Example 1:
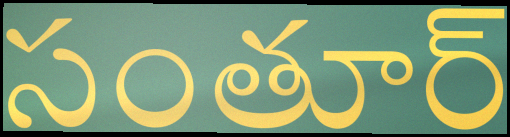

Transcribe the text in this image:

సంతూర్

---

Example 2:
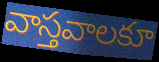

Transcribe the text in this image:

వాస్తవాలకూ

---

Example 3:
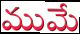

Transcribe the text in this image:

ముమే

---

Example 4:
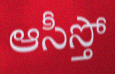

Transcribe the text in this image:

ఆసీస్తో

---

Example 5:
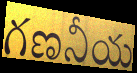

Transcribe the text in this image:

గణనీయ